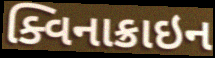
ક્વિનાક્રાઇન